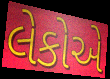
લેકોએ